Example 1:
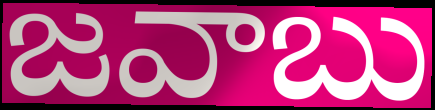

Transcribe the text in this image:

జవాబు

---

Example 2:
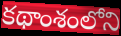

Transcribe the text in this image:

కథాంశంలోని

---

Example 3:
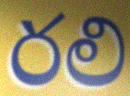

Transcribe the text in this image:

రలి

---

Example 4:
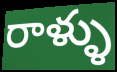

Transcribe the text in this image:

రాళ్ళు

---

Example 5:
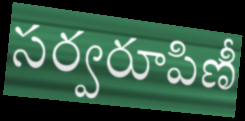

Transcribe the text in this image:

సర్వరూపిణీ